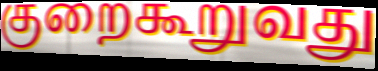
குறைகூறுவது